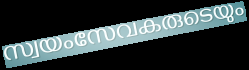
സ്വയംസേവകരുടെയും